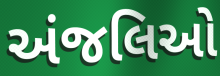
અંજલિઓ